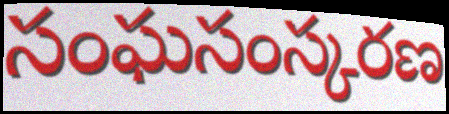
సంఘసంస్కరణ